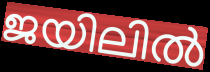
ജയിലിൽ